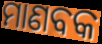
ମାଣବକ